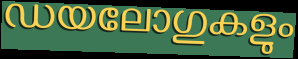
ഡയലോഗുകളും